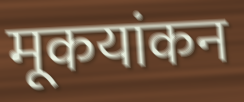
मूकयांकन